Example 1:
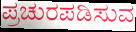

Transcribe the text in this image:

ಪ್ರಚುರಪಡಿಸುವ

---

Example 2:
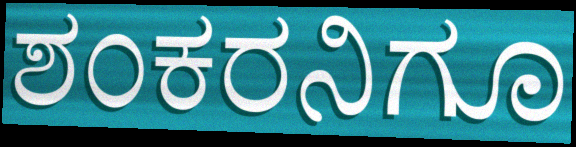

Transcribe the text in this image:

ಶಂಕರನಿಗೂ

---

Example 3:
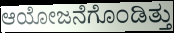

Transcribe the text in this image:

ಆಯೋಜನೆಗೊಂಡಿತ್ತು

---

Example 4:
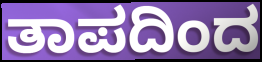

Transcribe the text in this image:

ತಾಪದಿಂದ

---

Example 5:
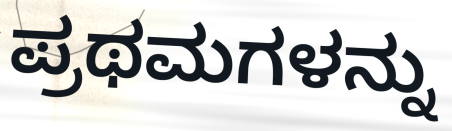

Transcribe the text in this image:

ಪ್ರಥಮಗಳನ್ನು